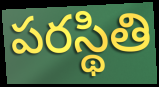
పరస్థితి